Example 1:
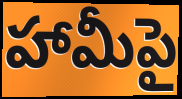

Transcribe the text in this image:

హామీపై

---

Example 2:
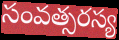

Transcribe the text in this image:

సంవత్సరస్య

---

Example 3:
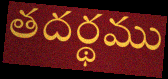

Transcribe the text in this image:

తదర్థము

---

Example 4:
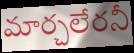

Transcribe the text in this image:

మార్చలేరనీ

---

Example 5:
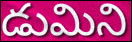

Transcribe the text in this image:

డుమిని